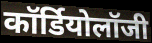
कॉर्डियोलॉजी